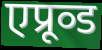
एप्रूव्ड